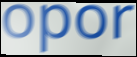
opor